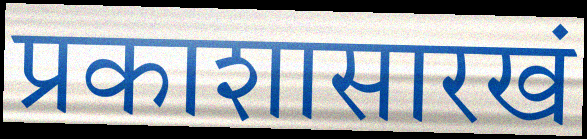
प्रकाशासारखं